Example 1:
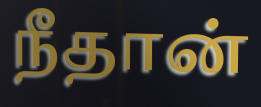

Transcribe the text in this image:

நீதான்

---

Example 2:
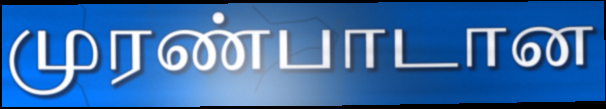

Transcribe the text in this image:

முரண்பாடான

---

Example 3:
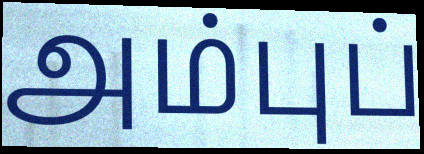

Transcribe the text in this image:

அம்புப்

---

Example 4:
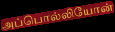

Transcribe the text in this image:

அப்பொல்லியோன்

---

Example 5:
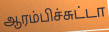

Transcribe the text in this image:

ஆரம்பிச்சுட்டா